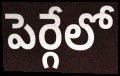
పెర్గేలో